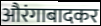
औरंगाबादकर